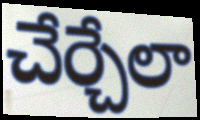
చేర్చేలా